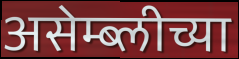
असेम्ब्लीच्या